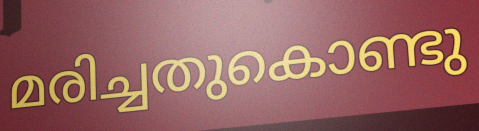
മരിച്ചതുകൊണ്ടു